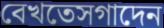
বেখতেসগাদেন